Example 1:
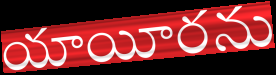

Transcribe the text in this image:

యాయీరను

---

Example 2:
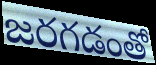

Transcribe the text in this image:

జరగడంతో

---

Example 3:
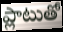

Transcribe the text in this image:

ప్లాటుతో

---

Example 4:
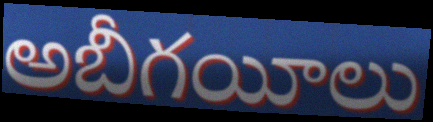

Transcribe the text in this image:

అబీగయీలు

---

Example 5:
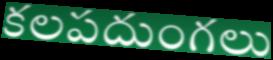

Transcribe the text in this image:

కలపదుంగలు